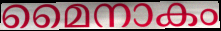
മൈനാകം